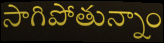
సాగిపోతున్నాం